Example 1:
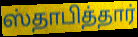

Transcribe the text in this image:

ஸ்தாபித்தார்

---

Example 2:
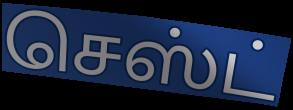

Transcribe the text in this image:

செஸ்ட்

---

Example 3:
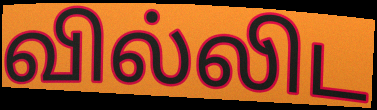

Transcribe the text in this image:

வில்லிட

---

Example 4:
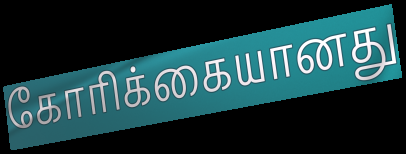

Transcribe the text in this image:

கோரிக்கையானது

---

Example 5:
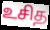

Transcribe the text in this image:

உசித